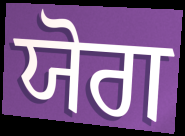
ਯੋਗ